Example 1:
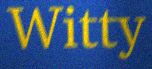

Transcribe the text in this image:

Witty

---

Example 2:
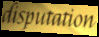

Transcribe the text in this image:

disputation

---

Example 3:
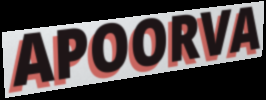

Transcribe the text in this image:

APOORVA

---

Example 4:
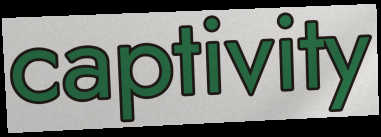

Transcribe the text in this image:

captivity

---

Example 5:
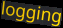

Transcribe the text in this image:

logging